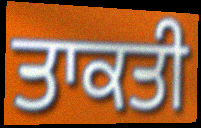
ਤਾਕਤੀ